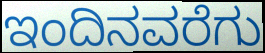
ಇಂದಿನವರೆಗು